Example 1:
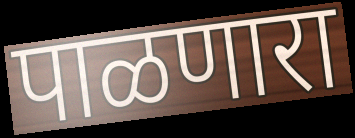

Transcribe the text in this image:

पाळणारा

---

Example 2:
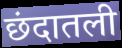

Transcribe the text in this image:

छंदातली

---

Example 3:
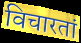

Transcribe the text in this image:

विचारतां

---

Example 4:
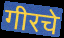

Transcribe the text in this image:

गीरचे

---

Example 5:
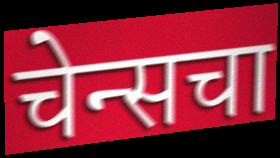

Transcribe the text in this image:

चेन्सचा